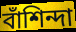
বাঁশিন্দা